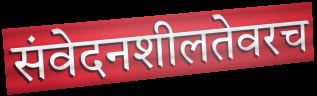
संवेदनशीलतेवरच